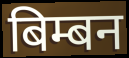
बिम्बन